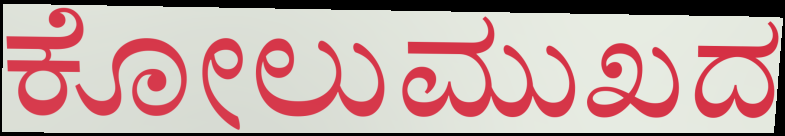
ಕೋಲುಮುಖದ